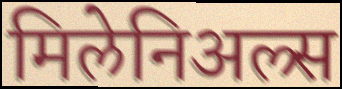
मिलेनिअल्स